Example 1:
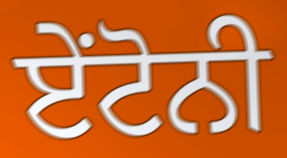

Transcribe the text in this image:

ਏਂਟੋਨੀ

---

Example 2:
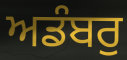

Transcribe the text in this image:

ਅਡੰਬਰੁ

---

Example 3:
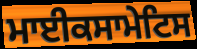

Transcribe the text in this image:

ਮਾਈਕਸਾਮੇਟਿਸ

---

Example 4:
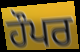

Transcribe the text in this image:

ਹੌਪਰ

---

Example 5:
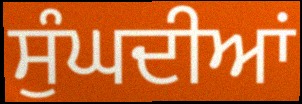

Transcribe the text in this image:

ਸੁੰਘਦੀਆਂ